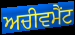
ਅਚੀਵਮੈਂਟ